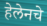
हेलेनचे